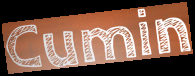
Cumin